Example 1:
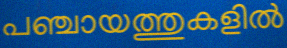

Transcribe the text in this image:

പഞ്ചായത്തുകളിൽ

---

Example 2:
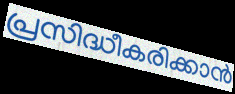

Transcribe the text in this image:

പ്രസിദ്ധീകരിക്കാൻ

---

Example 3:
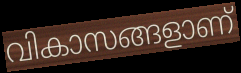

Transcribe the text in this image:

വികാസങ്ങളാണ്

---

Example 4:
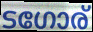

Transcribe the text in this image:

ടഗോര്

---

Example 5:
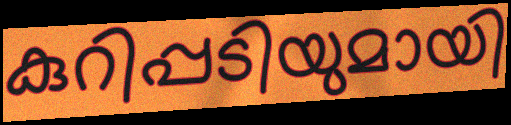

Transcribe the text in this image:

കുറിപ്പടിയുമായി